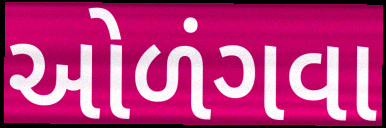
ઓળંગવા